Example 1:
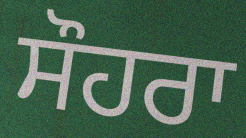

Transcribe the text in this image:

ਸੌਹਰਾ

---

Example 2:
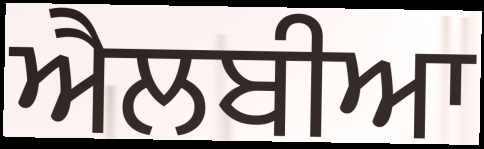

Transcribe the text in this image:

ਐਲਬੀਆ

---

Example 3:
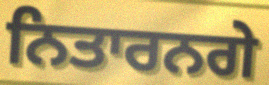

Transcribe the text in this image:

ਨਿਤਾਰਨਗੇ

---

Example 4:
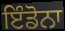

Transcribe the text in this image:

ਇੰਡੋਨਾ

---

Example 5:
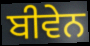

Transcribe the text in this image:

ਬੀਵੇਨ